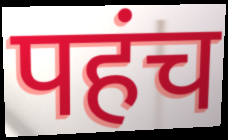
पहंच